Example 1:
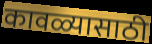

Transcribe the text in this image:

कावळ्यासाठी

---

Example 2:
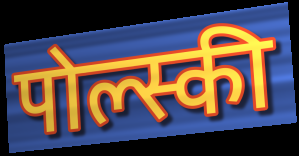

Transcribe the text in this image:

पोल्स्की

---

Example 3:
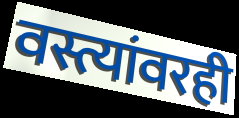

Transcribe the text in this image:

वस्त्यांवरही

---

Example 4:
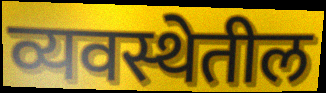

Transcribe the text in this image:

व्यवस्थेतील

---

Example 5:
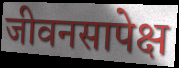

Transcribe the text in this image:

जीवनसापेक्ष